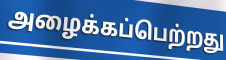
அழைக்கப்பெற்றது